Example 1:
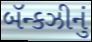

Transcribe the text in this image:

બૅન્કઝીનું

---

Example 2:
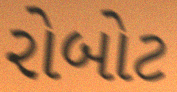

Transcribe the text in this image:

રોબોટ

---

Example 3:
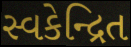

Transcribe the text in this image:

સ્વકેન્દ્રિત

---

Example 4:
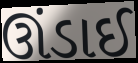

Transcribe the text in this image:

ઊંડાઈ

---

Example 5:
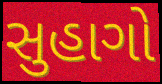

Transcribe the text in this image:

સુહાગો